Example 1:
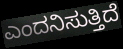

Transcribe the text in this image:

ಎಂದನಿಸುತ್ತಿದೆ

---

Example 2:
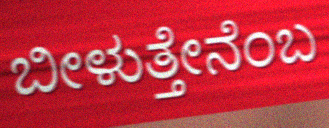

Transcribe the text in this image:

ಬೀಳುತ್ತೇನೆಂಬ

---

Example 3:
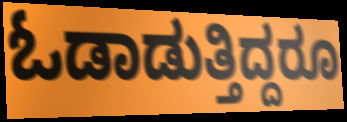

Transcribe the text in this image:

ಓಡಾಡುತ್ತಿದ್ದರೂ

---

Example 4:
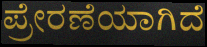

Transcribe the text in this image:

ಪ್ರೇರಣೆಯಾಗಿದೆ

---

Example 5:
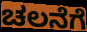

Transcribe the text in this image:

ಚಲನೆಗೆ